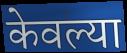
केवल्या